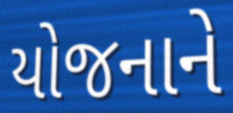
યોજનાને